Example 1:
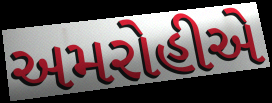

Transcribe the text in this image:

અમરોહીએ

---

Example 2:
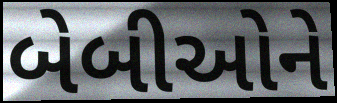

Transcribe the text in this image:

બેબીઓને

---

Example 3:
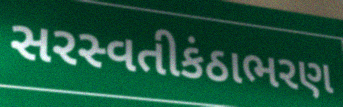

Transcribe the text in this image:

સરસ્વતીકંઠાભરણ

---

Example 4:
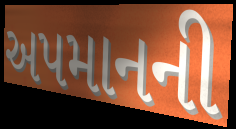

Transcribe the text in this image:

અપમાનની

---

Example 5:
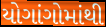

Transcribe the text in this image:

યોગાંગોમાંથી